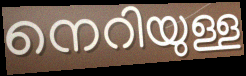
നെറിയുള്ള